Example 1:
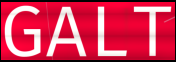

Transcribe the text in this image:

GALT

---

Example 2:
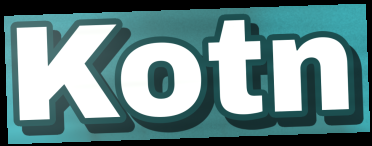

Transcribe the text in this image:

Kotn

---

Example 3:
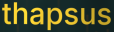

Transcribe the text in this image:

thapsus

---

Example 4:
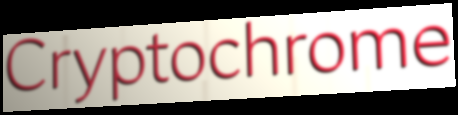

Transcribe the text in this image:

Cryptochrome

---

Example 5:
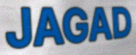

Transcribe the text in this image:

JAGAD